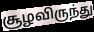
சூழவிருந்து